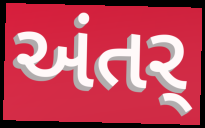
અંતર્